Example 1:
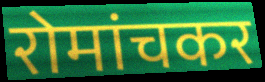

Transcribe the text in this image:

रोमांचकर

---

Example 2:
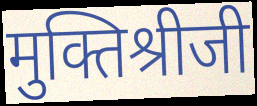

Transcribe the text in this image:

मुक्तिश्रीजी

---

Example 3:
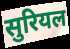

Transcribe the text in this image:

सुरियल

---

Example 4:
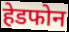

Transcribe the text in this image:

हेडफोन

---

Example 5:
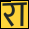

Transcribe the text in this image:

रा